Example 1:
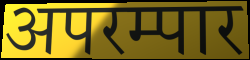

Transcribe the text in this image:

अपरम्पार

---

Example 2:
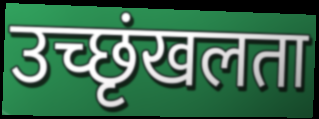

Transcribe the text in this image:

उच्छृंखलता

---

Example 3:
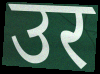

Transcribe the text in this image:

उर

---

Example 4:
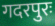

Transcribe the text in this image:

गदरपुरः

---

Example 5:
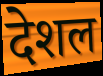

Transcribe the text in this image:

देशल